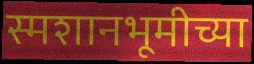
स्मशानभूमीच्या